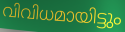
വിവിധമായിട്ടും